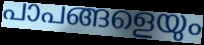
പാപങ്ങളെയും